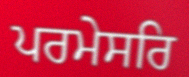
ਪਰਮੇਸਰਿ